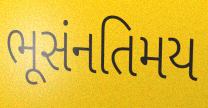
ભૂસંનતિમય